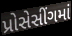
પ્રોસેસીંગમાં